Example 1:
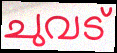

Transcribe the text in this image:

ചുവട്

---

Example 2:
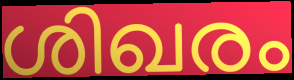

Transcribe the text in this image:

ശിഖരം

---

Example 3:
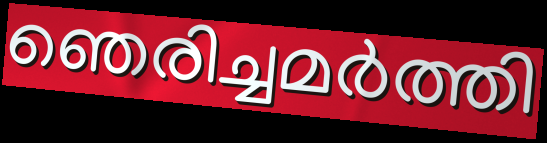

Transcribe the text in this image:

ഞെരിച്ചമർത്തി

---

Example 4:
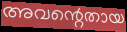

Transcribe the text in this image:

അവന്റെതായ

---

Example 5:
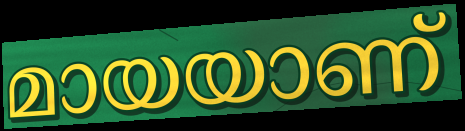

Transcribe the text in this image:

മായയാണ്